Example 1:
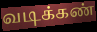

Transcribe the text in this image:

வடிக்கண்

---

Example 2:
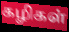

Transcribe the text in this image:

கழிகள்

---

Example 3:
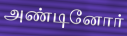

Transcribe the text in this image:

அண்டினோர்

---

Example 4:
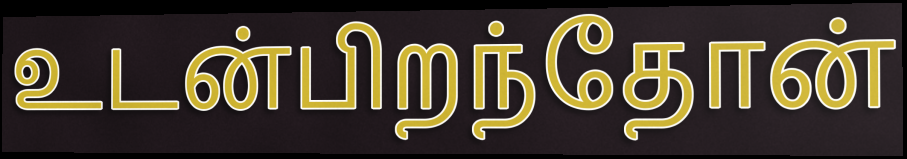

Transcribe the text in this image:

உடன்பிறந்தோன்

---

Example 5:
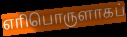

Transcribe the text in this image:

எரிபொருளாகப்